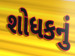
શોધકનું